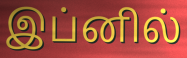
இப்னில்